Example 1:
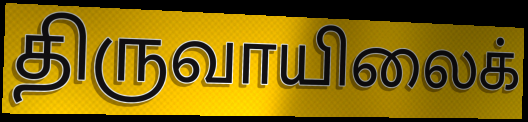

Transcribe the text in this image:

திருவாயிலைக்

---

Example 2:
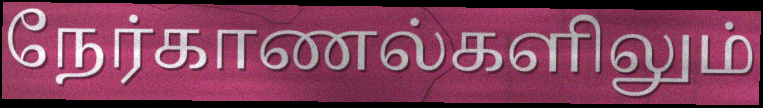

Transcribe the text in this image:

நேர்காணல்களிலும்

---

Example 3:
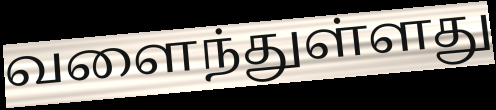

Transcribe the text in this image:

வளைந்துள்ளது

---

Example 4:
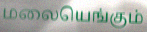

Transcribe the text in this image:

மலையெங்கும்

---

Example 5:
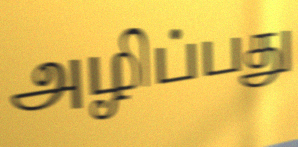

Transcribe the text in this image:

அழிப்பது